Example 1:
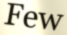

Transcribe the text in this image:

Few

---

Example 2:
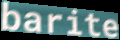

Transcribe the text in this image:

barite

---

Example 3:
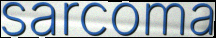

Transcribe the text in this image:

sarcoma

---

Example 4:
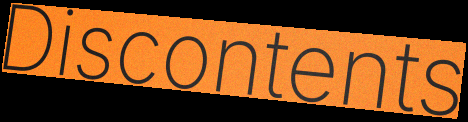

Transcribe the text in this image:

Discontents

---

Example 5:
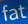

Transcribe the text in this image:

fat